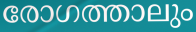
രോഗത്താലും